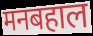
मनबहाल